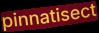
pinnatisect